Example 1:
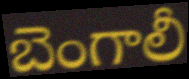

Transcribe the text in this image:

బెంగాలీ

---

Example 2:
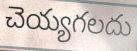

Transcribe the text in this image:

చెయ్యగలదు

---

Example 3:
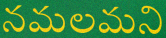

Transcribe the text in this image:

నమలమని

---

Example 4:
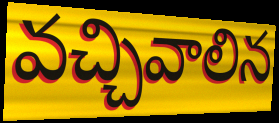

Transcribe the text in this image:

వచ్చివాలిన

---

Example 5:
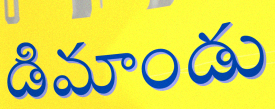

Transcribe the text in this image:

డిమాండు